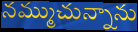
నమ్ముచున్నాను